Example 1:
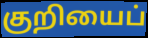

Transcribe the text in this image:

குறியைப்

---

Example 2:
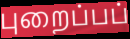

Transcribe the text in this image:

புறைப்பப்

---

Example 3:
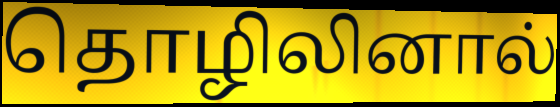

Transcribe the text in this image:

தொழிலினால்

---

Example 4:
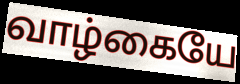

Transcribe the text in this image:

வாழ்கையே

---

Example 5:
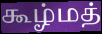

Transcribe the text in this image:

கூழ்மத்